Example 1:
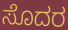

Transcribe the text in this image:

ಸೊದರ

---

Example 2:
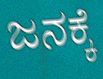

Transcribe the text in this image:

ಜನಕ್ಕೆ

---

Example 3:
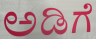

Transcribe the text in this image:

ಅಡಿಗೆ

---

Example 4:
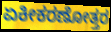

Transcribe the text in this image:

ಏಕೀಕರಣೋತ್ತರ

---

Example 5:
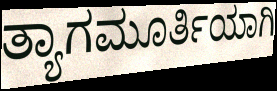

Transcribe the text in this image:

ತ್ಯಾಗಮೂರ್ತಿಯಾಗಿ